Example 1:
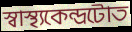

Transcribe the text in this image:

স্বাস্থ্যকেন্দ্ৰটোত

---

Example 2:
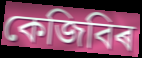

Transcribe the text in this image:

কেজিবিৰ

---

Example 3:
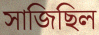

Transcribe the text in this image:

সাজিছিল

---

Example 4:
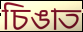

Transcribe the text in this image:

চিঙাত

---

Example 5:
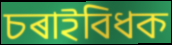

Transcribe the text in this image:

চৰাইবিধক